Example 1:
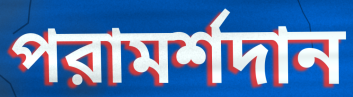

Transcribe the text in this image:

পরামর্শদান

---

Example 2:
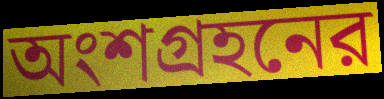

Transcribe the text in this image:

অংশগ্রহনের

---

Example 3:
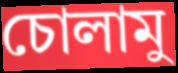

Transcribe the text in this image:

চোলামু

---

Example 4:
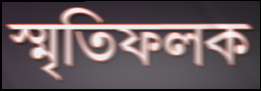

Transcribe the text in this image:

স্মৃতিফলক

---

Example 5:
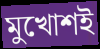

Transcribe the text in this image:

মুখোশই